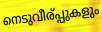
നെടുവീര്പ്പുകളും